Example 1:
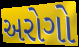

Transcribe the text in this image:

અરોગો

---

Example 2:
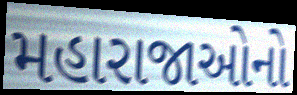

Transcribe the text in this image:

મહારાજાઓનો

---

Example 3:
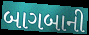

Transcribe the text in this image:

બાગબાની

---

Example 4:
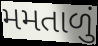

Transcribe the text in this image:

મમતાળું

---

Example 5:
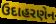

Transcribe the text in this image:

ઉદાહરણેન